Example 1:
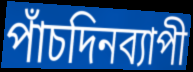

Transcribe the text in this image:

পাঁচদিনব্যাপী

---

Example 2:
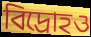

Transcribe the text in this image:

বিদ্রোহও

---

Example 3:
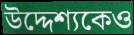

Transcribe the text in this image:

উদ্দেশ্যকেও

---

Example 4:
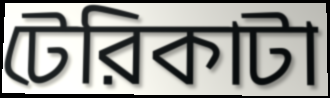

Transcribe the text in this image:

টেরিকাটা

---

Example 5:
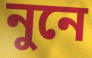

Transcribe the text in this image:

নুনে